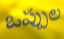
ఒప్పుల